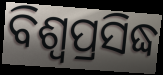
ବିଶ୍ଵପ୍ରସିଦ୍ଧ